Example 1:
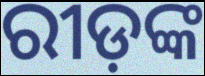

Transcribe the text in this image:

ରୀଡ଼ଙ୍କ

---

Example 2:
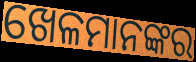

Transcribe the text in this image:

ଖେଳମାନଙ୍କର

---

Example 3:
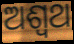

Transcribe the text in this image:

ଅଶ୍ବଥ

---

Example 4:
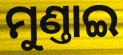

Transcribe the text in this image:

ମୁଣ୍ତାଇ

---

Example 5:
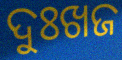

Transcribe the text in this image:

ଦୁଃଖଜ